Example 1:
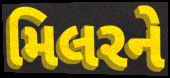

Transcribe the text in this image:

મિલરને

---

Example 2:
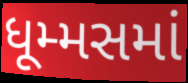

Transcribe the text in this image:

ધૂમ્મસમાં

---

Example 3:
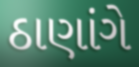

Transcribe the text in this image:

ઠાણાંગે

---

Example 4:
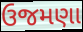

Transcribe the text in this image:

ઉજમણા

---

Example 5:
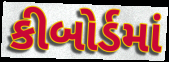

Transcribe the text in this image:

કીબોર્ડમાં